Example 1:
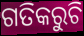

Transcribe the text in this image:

ଗତିକରୁଚି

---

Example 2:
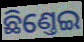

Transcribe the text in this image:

ଛିଣ୍ତେଇ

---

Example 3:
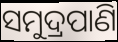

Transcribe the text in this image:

ସମୁଦ୍ରପାଣି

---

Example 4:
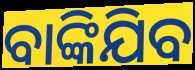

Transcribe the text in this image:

ବାଙ୍କିଯିବ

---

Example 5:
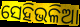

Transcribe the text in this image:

ସେହିଭଳିଆ